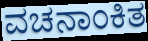
ವಚನಾಂಕಿತ